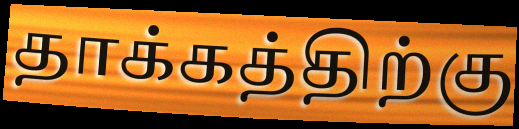
தாக்கத்திற்கு